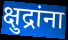
क्षुद्रांना